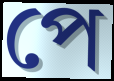
পে